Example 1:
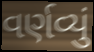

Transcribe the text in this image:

વર્ણવ્યું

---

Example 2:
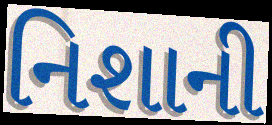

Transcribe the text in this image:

નિશાની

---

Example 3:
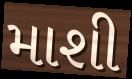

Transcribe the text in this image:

માશી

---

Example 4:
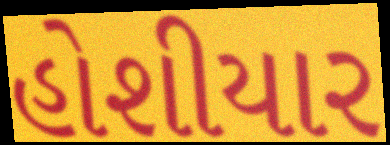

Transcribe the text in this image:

હોશીયાર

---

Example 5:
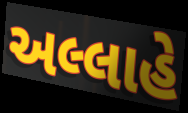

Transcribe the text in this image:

અલ્લાહે